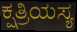
ಕ್ಷತ್ರಿಯಸ್ಯ